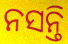
ନସନ୍ତି